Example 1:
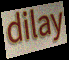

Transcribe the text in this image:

dilay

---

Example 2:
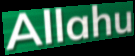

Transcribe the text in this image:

Allahu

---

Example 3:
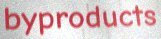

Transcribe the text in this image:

byproducts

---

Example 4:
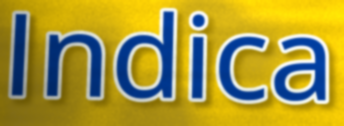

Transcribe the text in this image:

Indica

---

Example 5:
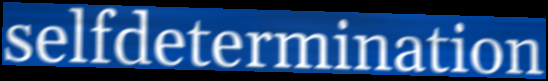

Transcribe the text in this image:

selfdetermination